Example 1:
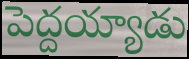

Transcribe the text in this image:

పెద్దయ్యాడు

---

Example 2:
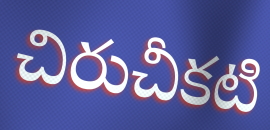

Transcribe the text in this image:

చిరుచీకటి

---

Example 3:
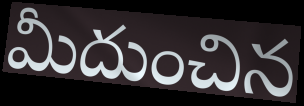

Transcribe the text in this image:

మీదుంచిన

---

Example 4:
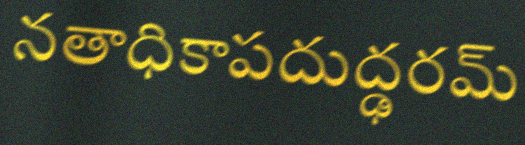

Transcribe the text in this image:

నతాధికాపదుద్ఢరమ్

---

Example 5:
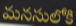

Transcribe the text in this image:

మనసులోకి